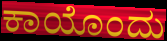
ಕಾಯೊಂದು